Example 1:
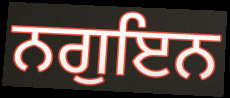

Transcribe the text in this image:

ਨਗੁਇਨ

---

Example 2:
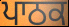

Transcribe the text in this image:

ਪਾਠਕ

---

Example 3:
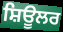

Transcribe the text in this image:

ਸ਼ਿਊਲਰ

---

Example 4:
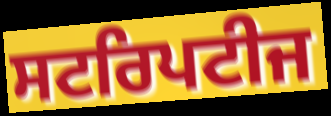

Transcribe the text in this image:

ਸਟਰਿਪਟੀਜ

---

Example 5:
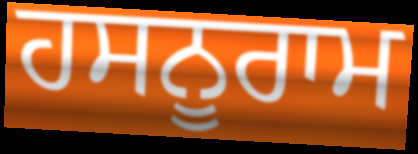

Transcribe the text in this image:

ਹਸਨੂਰਾਮ